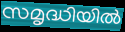
സമൃദ്ധിയിൽ